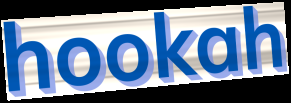
hookah